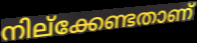
നില്ക്കേണ്ടതാണ്